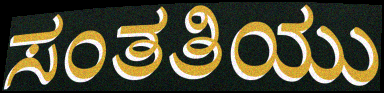
ಸಂತತಿಯು